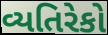
વ્યતિરેકો